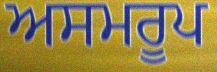
ਅਸਮਰੂਪ